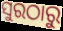
ସୁରଠାରୁ